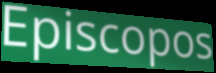
Episcopos